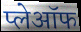
प्‍लेऑफ